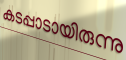
കടപ്പാടായിരുന്നു